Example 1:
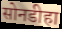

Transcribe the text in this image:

सोनडीहा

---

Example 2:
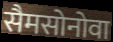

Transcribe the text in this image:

सैमसोनोवा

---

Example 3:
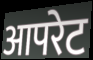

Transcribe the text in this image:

आपरेट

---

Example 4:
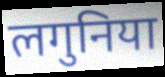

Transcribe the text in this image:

लगुनिया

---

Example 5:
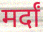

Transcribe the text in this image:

मर्दां